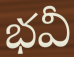
భవీ